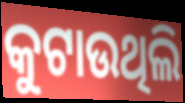
କୁଟାଉଥିଲି